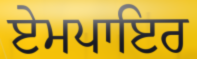
ਏਮਪਾਇਰ